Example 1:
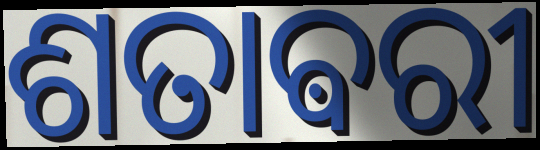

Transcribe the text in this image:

ଶତାଵରୀ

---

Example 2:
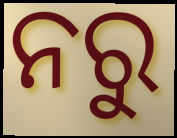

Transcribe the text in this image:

ନରୁ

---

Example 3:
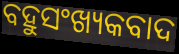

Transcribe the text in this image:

ବହୁସଂଖ୍ୟକବାଦ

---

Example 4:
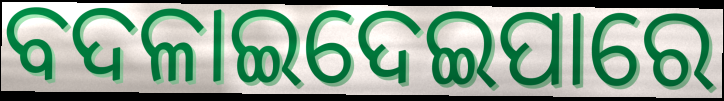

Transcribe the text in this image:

ବଦଳାଇଦେଇପାରେ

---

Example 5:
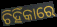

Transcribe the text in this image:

ଚିହିଁକାରେ